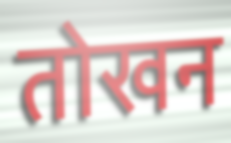
तोखन